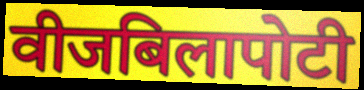
वीजबिलापोटी